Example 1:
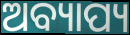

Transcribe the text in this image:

ଅବ୍ୟାପ୍ୟ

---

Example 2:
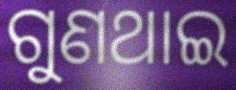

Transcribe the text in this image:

ଗୁଣଥାଇ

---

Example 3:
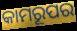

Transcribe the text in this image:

କାମରୂପର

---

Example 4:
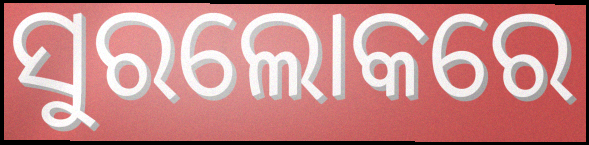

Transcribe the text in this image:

ସୁରଲୋକରେ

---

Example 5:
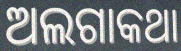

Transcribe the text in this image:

ଅଲଗାକଥା